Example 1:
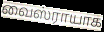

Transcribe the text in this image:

வைஸ்ராயாக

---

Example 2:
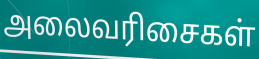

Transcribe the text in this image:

அலைவரிசைகள்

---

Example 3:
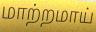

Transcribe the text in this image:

மாற்றமாய்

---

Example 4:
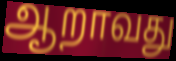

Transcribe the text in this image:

ஆறாவது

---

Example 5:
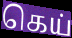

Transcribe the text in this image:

கெய்